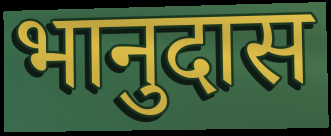
भानुदास